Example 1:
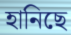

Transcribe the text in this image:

হানিছে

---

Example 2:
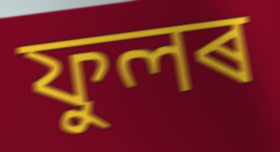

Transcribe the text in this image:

ফুলৰ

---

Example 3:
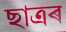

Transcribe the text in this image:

ছাত্ৰৰ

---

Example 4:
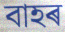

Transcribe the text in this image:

বাহৰ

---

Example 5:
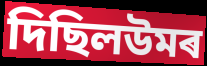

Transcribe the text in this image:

দিছিলউমৰ